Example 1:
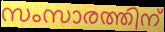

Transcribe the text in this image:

സംസാരത്തിന്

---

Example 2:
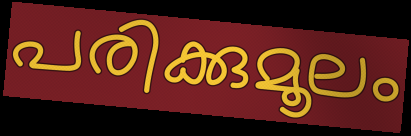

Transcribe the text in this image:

പരിക്കുമൂലം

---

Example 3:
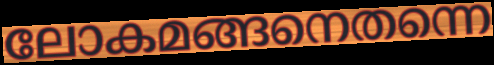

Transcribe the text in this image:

ലോകമങ്ങനെതന്നെ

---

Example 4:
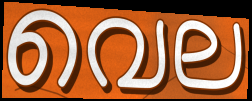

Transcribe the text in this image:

വെല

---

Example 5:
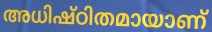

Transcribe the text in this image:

അധിഷ്ഠിതമായാണ്